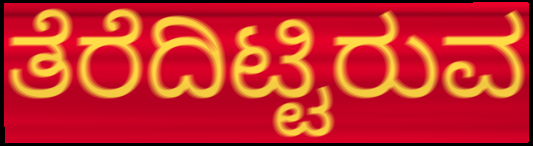
ತೆರೆದಿಟ್ಟಿರುವ